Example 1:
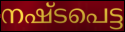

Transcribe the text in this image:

നഷ്ടപെട്ട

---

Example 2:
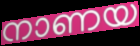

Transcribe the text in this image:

നാണയ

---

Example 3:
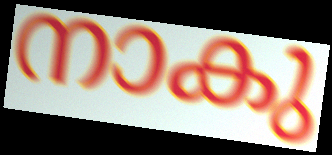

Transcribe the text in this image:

നാകു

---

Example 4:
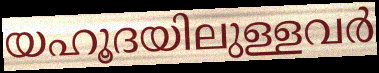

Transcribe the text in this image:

യഹൂദയിലുള്ളവർ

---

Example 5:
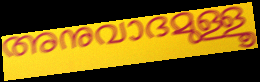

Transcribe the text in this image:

അനുവാദമുള്ളൂ